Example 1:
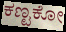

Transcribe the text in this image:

ಕಣ್ಟಕೋ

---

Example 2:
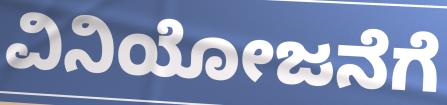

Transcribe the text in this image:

ವಿನಿಯೋಜನೆಗೆ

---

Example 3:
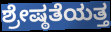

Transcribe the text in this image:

ಶ್ರೇಷ್ಠತೆಯತ್ತ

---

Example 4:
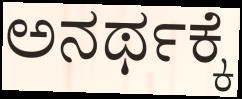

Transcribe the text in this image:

ಅನರ್ಥಕ್ಕೆ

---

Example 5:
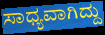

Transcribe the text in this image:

ಸಾಧ್ಯವಾಗಿದ್ದು